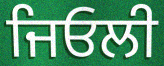
ਜਿਓਲੀ